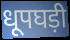
धूपघड़ी